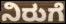
ನಿರುಗೆ